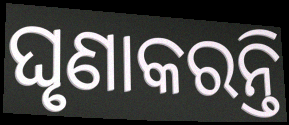
ଘୃଣାକରନ୍ତି